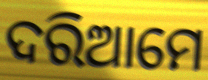
ଦରିଆମେ